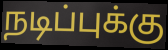
நடிப்புக்கு